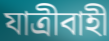
যাত্ৰীবাহী